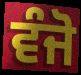
ਵੰਜੋ